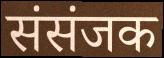
संसंजक